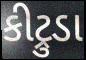
કીટ્રુડા